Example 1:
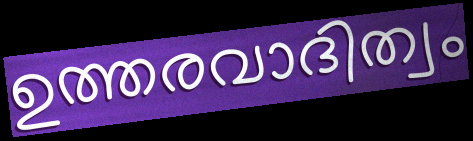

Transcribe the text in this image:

ഉത്തരവാദിത്വം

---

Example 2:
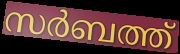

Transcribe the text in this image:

സർബത്ത്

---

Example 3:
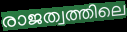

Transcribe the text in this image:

രാജത്വത്തിലെ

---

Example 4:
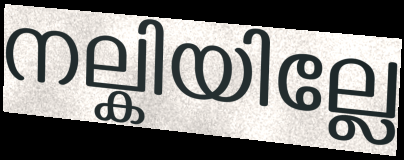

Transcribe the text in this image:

നല്കിയില്ലേ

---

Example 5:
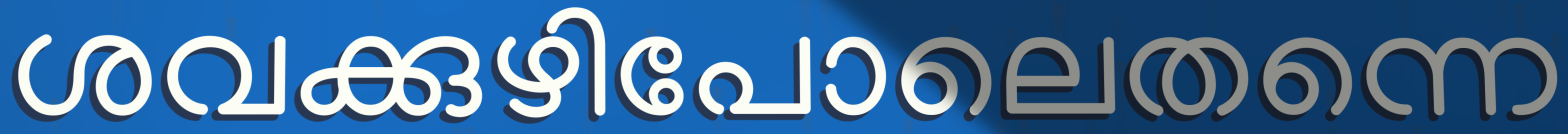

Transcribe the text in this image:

ശവക്കുഴിപോലെതന്നെ